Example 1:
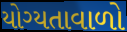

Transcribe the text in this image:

યોગ્યતાવાળો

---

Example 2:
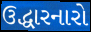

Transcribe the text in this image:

ઉદ્ધારનારો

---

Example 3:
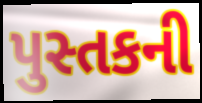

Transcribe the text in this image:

પુસ્તકની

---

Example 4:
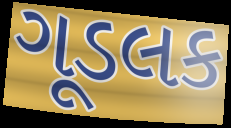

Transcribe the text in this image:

ગૂડલક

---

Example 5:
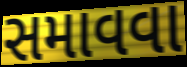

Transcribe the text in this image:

સમાવવા